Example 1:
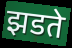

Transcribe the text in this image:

झडते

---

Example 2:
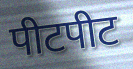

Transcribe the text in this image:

पीटपीट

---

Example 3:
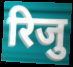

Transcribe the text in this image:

रिजु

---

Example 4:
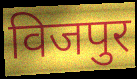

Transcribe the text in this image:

विजपुर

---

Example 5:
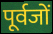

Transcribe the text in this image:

पूर्वजों